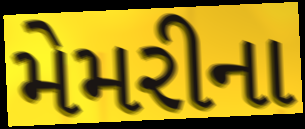
મેમરીના